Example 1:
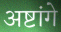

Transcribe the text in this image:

अष्टांगे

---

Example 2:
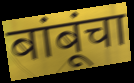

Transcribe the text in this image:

बांबूंचा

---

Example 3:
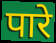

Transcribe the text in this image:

पारे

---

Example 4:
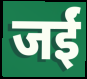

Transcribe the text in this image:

जईं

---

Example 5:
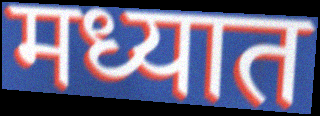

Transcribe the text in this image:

मध्यात